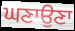
ਘਣਾਉਣਾ